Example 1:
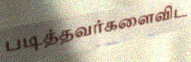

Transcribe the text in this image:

படித்தவர்களைவிட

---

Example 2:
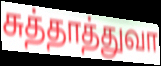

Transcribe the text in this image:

சுத்தாத்துவா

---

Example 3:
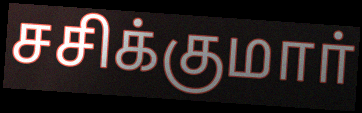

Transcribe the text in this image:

சசிக்குமார்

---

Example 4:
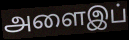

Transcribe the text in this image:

அளைஇப்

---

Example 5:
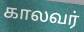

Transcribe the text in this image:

காலவர்